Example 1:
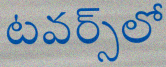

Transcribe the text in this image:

టవర్స్‌లో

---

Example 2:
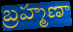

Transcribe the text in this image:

బ్రహ్మణా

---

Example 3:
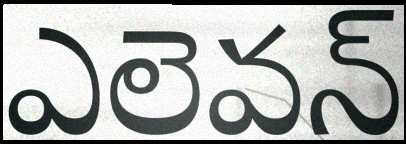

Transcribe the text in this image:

ఎలెవన్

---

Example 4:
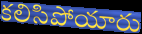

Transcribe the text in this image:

కలిసిపోయారు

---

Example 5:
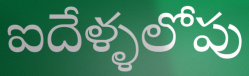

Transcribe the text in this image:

ఐదేళ్ళలోపు